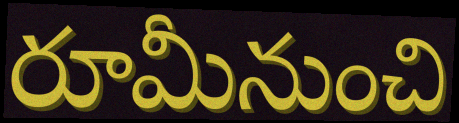
రూమీనుంచి